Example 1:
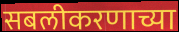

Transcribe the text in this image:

सबलीकरणाच्या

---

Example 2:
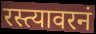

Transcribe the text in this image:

रस्त्यावरनं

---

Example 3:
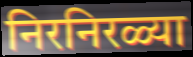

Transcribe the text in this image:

निरनिरळ्या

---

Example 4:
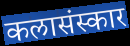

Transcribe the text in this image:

कलासंस्कार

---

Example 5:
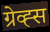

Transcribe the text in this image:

ग्रेव्ह्स